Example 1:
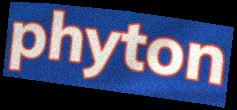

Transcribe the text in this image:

phyton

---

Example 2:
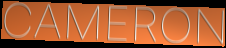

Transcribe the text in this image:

CAMERON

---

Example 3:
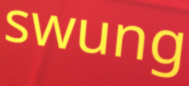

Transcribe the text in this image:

swung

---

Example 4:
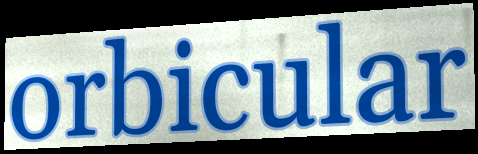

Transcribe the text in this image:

orbicular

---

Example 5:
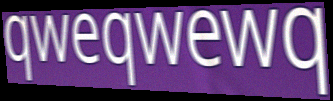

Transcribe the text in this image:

qweqwewq